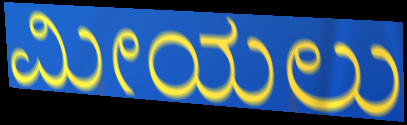
ಮೀಯಲು